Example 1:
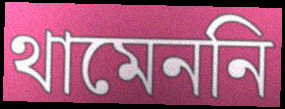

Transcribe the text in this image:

থামেননি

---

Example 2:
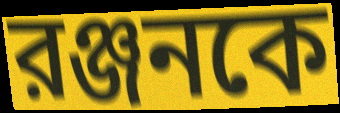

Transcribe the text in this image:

রঞ্জনকে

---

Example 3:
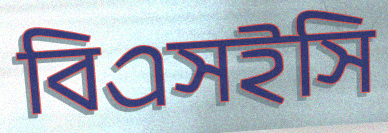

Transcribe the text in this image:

বিএসইসি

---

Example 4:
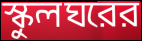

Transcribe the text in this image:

স্কুলঘরের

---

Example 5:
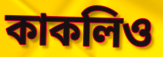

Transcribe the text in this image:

কাকলিও